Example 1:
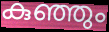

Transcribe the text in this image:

കുഞ്ഞും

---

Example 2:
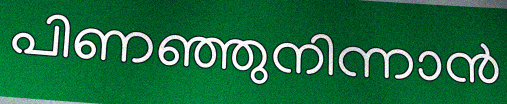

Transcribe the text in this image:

പിണഞ്ഞുനിന്നാൻ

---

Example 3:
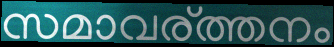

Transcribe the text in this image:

സമാവര്ത്തനം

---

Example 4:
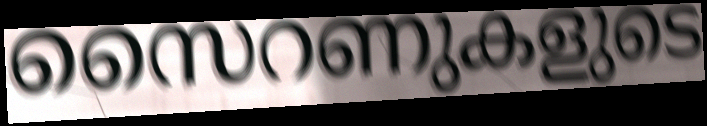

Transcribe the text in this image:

സൈറണുകളുടെ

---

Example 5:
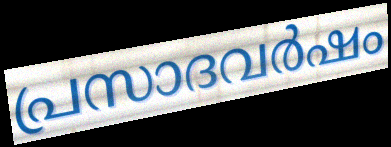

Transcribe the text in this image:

പ്രസാദവർഷം